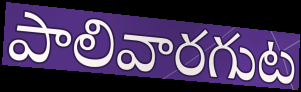
పాలివారగుట